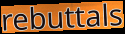
rebuttals